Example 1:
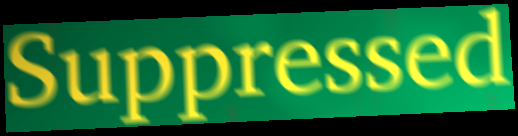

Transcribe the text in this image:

Suppressed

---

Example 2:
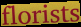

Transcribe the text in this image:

florists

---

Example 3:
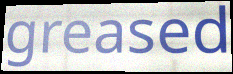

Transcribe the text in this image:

greased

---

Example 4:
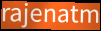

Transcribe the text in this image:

rajenatm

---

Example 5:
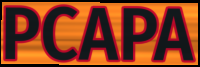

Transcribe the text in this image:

PCAPA